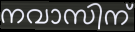
നവാസിന്